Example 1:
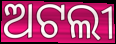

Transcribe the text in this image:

ଅଟଲୀ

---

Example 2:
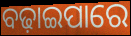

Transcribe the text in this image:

ବଢ଼ାଇପାରେ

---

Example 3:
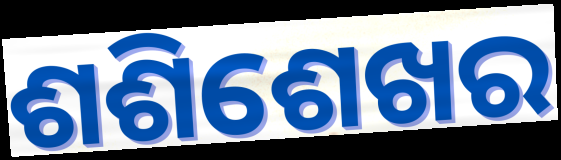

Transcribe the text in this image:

ଶଶିଶେଖର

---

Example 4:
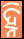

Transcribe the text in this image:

ହ୍ନି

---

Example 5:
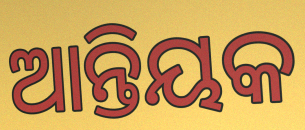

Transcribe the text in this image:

ଆନ୍ତିୟକ